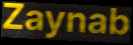
Zaynab